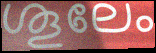
ശൂലേം